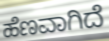
ಹೆಣವಾಗಿದೆ